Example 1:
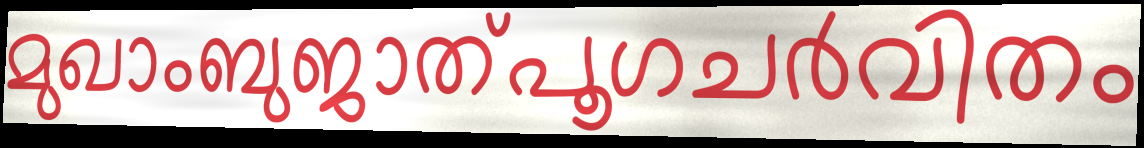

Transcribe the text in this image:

മുഖാംബുജാത്പൂഗചർവിതം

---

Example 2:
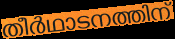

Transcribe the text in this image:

തീർഥാടനത്തിന്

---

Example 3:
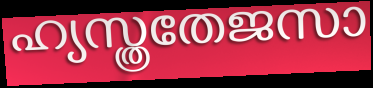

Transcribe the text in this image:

ഹ്യസ്ത്രതേജസാ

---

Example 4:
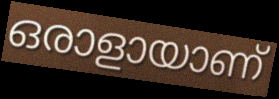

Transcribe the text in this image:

ഒരാളായാണ്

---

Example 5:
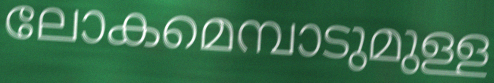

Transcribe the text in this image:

ലോകമെമ്പാടുമുള്ള